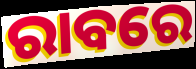
ରାବରେ